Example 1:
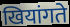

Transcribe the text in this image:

खियांगते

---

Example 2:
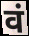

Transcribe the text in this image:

वं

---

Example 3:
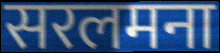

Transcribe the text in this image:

सरलमना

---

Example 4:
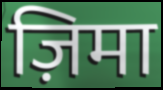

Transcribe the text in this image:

ज़िमा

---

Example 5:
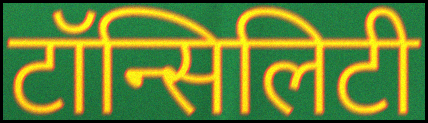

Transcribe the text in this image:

टॉन्सिलिटी